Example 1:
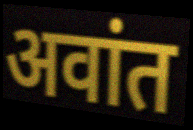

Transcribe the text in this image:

अवांत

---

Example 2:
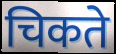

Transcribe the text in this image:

चिकते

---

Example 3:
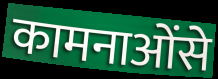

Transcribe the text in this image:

कामनाओंसे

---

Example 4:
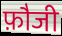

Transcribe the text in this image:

फ़ौजी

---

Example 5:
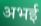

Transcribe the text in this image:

अभई